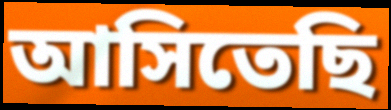
আসিতেছি